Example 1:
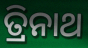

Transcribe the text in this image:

ତ୍ରିନାଥ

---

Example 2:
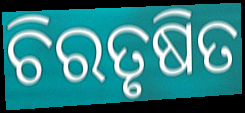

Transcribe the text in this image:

ଚିରତୃଷିତ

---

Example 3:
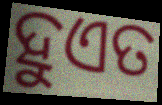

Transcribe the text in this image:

ହୁଏତ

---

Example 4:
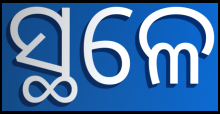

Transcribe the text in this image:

ସ୍ଥଳେ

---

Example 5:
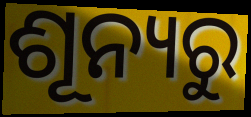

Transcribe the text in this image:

ଶୂନ୍ୟରୁ